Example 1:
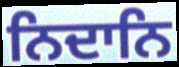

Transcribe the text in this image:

ਨਿਦਾਨਿ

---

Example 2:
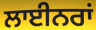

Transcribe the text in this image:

ਲਾਈਨਰਾਂ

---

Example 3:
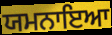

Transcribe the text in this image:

ਯਮਨਾਇਆ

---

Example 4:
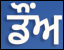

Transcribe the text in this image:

ਡੌਂਅ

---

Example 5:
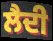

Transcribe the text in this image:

ਲੈਦੀ